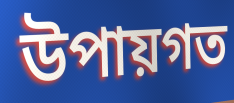
উপায়গত